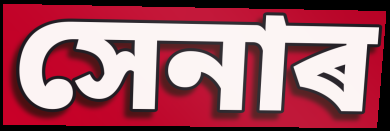
সেনাৰ